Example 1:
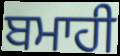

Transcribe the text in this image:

ਬਮਾਹੀ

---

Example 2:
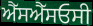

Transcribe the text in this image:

ਐੱਸਐੱਸਓਸੀ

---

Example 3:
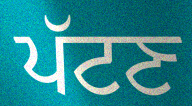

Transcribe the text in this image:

ਪੱਟਣ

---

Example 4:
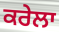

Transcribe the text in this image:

ਕਰੇਲਾ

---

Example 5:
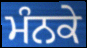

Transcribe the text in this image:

ਮੰਨਕੇ